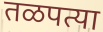
तळपत्या